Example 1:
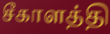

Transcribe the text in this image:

சீகாளத்தி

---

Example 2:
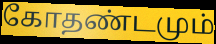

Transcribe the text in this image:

கோதண்டமும்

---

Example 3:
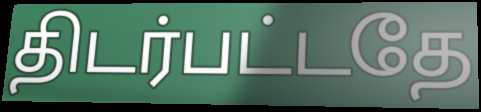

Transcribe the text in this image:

திடர்பட்டதே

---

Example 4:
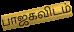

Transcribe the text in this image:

பாஜகவிடம்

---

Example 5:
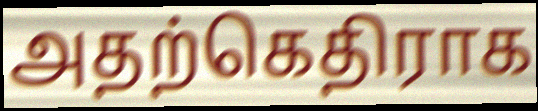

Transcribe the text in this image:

அதற்கெதிராக